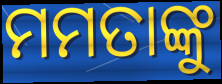
ମମତାଙ୍କୁ